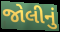
જોલીનું